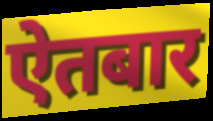
ऐतबार